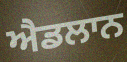
ਐਡਲਾਨ